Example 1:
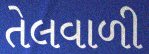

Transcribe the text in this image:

તેલવાળી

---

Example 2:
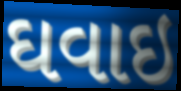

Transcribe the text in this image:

ઘવાઇ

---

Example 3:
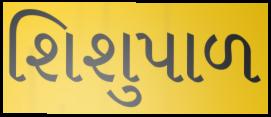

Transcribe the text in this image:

શિશુપાળ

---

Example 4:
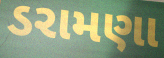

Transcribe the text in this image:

ડરામણા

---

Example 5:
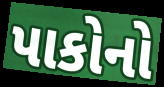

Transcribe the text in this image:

પાકોનો